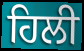
ਹਿਲੀ